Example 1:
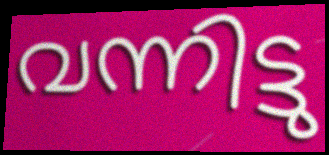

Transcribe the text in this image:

വന്നിട്ടു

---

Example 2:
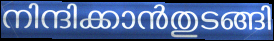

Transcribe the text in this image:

നിന്ദിക്കാൻതുടങ്ങി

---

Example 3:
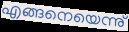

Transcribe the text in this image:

എങ്ങനെയെന്നു്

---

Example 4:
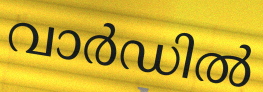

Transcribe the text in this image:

വാർഡിൽ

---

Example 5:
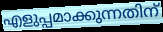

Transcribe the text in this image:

എളുപ്പമാക്കുന്നതിന്